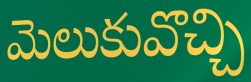
మెలుకువొచ్చి